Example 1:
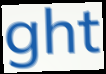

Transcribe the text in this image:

ght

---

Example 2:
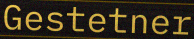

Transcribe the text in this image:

Gestetner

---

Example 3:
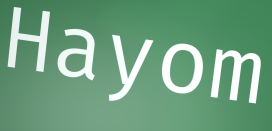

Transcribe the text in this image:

Hayom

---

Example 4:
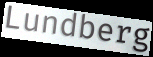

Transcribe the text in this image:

Lundberg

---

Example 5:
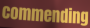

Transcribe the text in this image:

commending